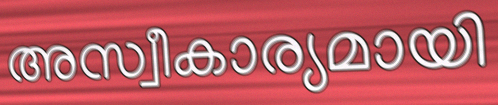
അസ്വീകാര്യമായി